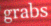
grabs